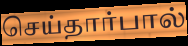
செய்தார்பால்